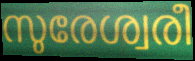
സുരേശ്വരീ